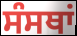
ਸੰਸਥਾਂ